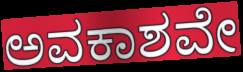
ಅವಕಾಶವೇ